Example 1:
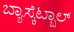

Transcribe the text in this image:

ಬ್ಯಾಸ್ಕೆಟ್ಬಾಲ್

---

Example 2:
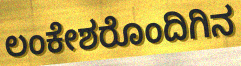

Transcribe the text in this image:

ಲಂಕೇಶರೊಂದಿಗಿನ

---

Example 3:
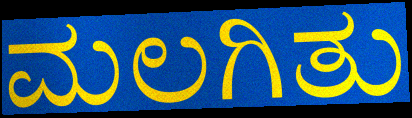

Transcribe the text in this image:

ಮಲಗಿತು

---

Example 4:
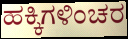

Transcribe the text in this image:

ಹಕ್ಕಿಗಳಿಂಚರ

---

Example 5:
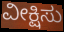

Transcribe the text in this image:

ವೀಕ್ಷಿಸು